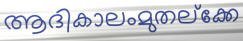
ആദികാലംമുതല്ക്കേ